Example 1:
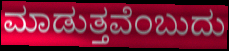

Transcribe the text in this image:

ಮಾಡುತ್ತವೆಂಬುದು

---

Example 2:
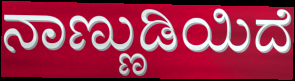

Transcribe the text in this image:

ನಾಣ್ಣುಡಿಯಿದೆ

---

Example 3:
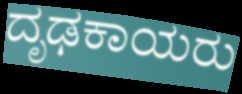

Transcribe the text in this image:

ದೃಢಕಾಯರು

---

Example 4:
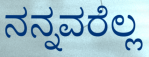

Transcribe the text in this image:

ನನ್ನವರೆಲ್ಲ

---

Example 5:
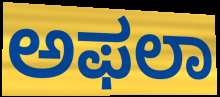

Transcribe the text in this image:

ಅಫಲಾ